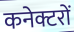
कनेक्टरों